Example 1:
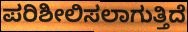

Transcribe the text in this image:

ಪರಿಶೀಲಿಸಲಾಗುತ್ತಿದೆ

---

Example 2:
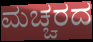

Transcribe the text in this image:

ಮಚ್ಚರದ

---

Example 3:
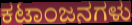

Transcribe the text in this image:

ಕಟಾಂಜನಗಳು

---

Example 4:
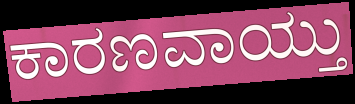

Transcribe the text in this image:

ಕಾರಣವಾಯ್ತು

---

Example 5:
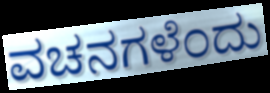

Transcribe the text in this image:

ವಚನಗಳೆಂದು